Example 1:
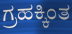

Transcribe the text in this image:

ಗ್ರಹಕ್ಕಿಂತ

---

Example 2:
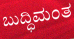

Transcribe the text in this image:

ಬುದ್ಧಿಮಂತ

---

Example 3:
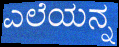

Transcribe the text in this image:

ಎಲೆಯನ್ನ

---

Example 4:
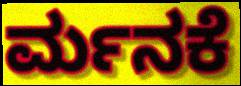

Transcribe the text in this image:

ರ್ಮನಕೆ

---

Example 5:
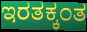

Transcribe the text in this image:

ಇರತಕ್ಕಂತ